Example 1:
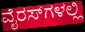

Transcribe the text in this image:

ವೈರಸ್‌ಗಳಲ್ಲಿ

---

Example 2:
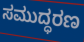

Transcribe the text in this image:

ಸಮುದ್ಧರಣ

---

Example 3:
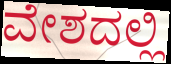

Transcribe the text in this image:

ವೇಶದಲ್ಲಿ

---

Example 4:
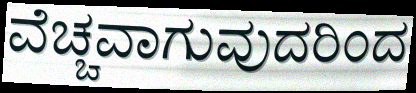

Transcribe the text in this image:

ವೆಚ್ಚವಾಗುವುದರಿಂದ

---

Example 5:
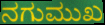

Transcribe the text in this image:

ನಗುಮುಖ